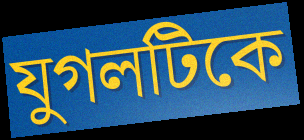
যুগলটিকে